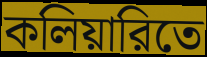
কলিয়ারিতে